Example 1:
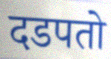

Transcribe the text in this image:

दडपतो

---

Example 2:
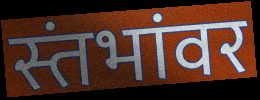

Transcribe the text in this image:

स्तंभांवर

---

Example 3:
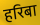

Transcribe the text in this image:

हरिबा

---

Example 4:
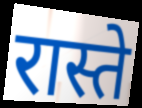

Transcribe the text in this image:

रास्ते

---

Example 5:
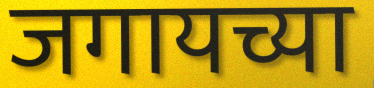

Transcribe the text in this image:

जगायच्या